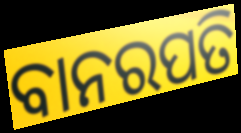
ବାନରପତି